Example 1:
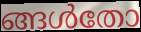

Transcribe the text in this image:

ങ്ങൾതോ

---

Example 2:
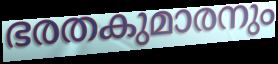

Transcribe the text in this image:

ഭരതകുമാരനും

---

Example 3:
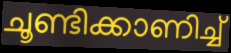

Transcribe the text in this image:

ചൂണ്ടിക്കാണിച്ച്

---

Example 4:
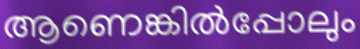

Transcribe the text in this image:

ആണെങ്കിൽപ്പോലും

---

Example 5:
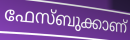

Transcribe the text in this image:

ഫേസ്ബുക്കാണ്